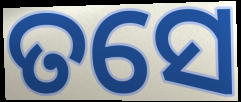
ତସେ